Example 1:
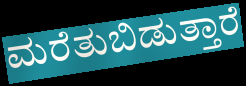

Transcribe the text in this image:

ಮರೆತುಬಿಡುತ್ತಾರೆ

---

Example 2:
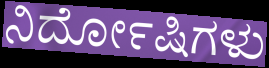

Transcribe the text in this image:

ನಿರ್ದೋಷಿಗಳು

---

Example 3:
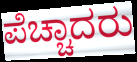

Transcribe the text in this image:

ಪೆಚ್ಚಾದರು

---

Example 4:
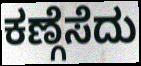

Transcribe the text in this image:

ಕಣ್ಗೆಸೆದು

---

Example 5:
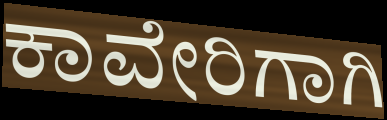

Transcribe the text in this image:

ಕಾವೇರಿಗಾಗಿ